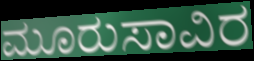
ಮೂರುಸಾವಿರ